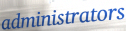
administrators